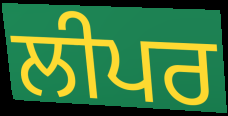
ਲੀਪਰ